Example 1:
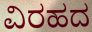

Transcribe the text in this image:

ವಿರಹದ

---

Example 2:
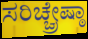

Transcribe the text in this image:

ಸರಿಚ್ಚ್ರೇಷ್ಠಾ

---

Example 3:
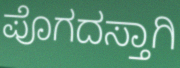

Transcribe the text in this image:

ಪೊಗದಸ್ತಾಗಿ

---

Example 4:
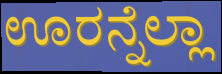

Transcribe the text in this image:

ಊರನ್ನೆಲ್ಲಾ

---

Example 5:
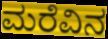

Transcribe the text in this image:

ಮರೆವಿನ